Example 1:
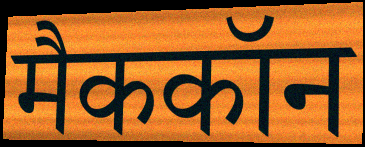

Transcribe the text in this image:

मैककॉन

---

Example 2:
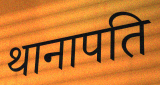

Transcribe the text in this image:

थानापति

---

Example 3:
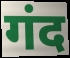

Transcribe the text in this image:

गंद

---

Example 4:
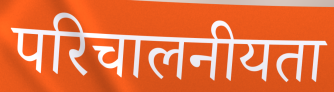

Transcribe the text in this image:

परिचालनीयता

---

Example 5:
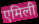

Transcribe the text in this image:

एमिली